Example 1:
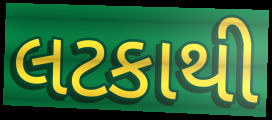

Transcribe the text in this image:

લટકાથી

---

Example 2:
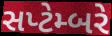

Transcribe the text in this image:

સપ્ટેમ્બરે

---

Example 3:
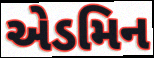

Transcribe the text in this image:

એડમિન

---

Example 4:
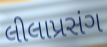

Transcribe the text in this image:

લીલાપ્રસંગ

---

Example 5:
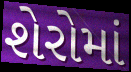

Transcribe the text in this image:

શેરોમાં